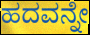
ಹದವನ್ನೇ